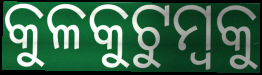
କୁଳକୁଟୁମ୍ବକୁ